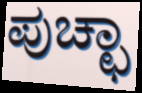
ಪುಚ್ಛಾ